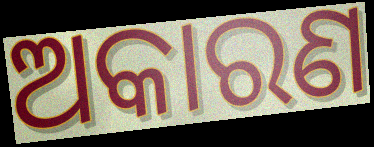
ଅକାରଣ